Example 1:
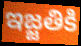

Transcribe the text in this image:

ఇజ్జతికి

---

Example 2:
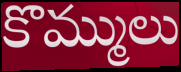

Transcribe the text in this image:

కొమ్ములు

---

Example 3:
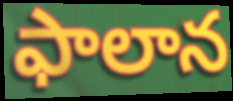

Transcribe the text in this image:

ఫాలాన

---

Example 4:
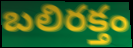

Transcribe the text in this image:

బలిరక్తం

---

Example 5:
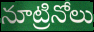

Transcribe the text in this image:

నూట్రినోలు